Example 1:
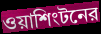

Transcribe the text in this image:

ওয়াশিংটনের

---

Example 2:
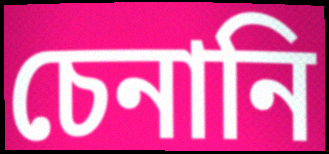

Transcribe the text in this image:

চেনানি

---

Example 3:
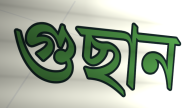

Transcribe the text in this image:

গুছান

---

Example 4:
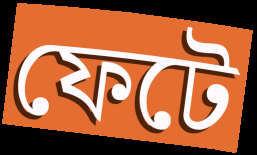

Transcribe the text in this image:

ফেটে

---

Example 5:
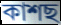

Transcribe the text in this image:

কাশছ